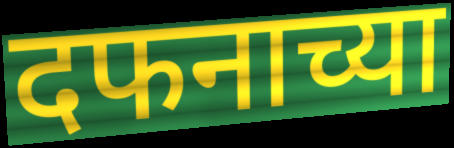
दफनाच्या